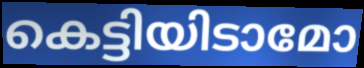
കെട്ടിയിടാമോ